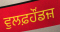
ਵੁਲਫ਼ਹੌਂਡਜ਼